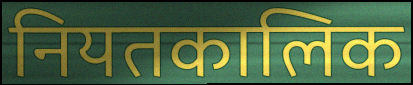
नियतकालिक